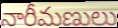
నారీమణులు